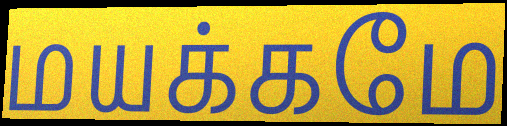
மயக்கமே